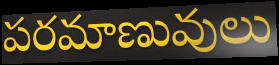
పరమాణువులు